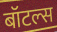
बॉटल्स